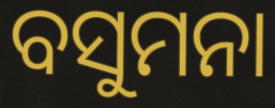
ବସୁମନା